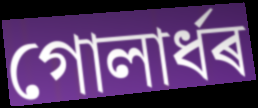
গোলাৰ্ধৰ